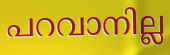
പറവാനില്ല